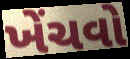
ખેંચવો